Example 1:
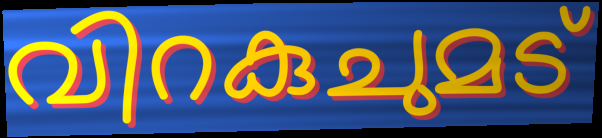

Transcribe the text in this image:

വിറകുചുമട്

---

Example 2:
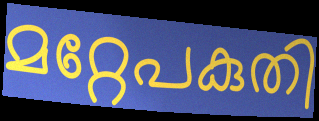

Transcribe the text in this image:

മറ്റേപകുതി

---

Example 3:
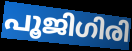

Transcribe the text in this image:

പൂജിഗിരി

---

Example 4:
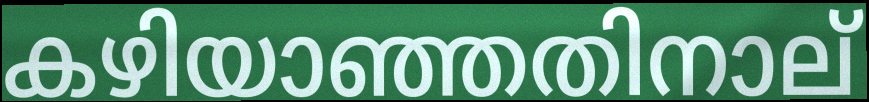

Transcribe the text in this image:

കഴിയാഞ്ഞതിനാല്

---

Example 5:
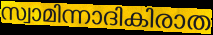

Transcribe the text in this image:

സ്വാമിന്നാദികിരാത